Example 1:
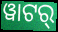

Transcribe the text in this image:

ୱାଟର୍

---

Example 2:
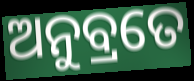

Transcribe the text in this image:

ଅନୁବ୍ରତେ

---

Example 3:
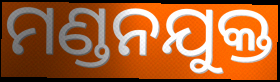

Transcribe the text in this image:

ମଣ୍ଡନଯୁକ୍ତ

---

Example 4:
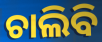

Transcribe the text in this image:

ଚାଲିବି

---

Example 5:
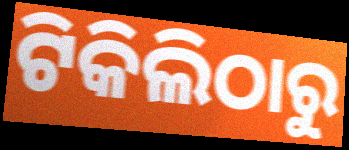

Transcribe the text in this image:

ଟିକିଲିଠାରୁ